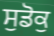
ਸੁਡੋਕੁ